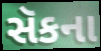
સૅકના